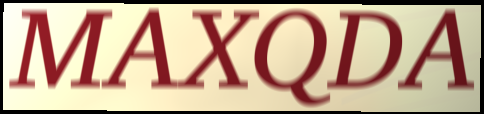
MAXQDA